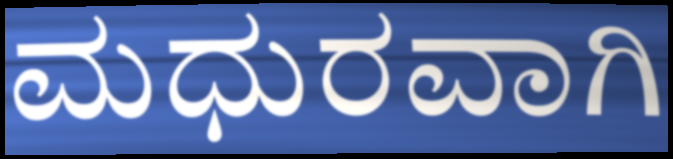
ಮಧುರವಾಗಿ